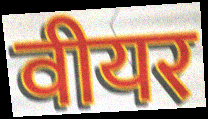
वीयर